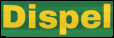
Dispel